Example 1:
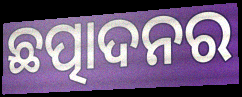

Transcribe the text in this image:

ଛତ୍ପାଦନର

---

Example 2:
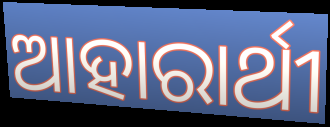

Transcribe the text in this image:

ଆହାରାର୍ଥୀ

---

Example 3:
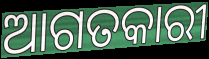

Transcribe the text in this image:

ଆଗତକାରୀ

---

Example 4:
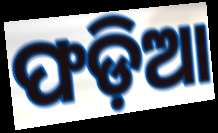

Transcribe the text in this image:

ଫଡ଼ିଆ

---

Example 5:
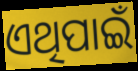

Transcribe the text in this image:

ଏଥିପାଇଁ